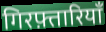
गिरफ़्तारियाँ